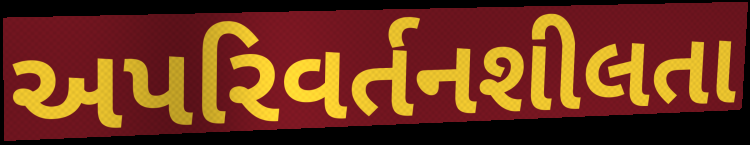
અપરિવર્તનશીલતા